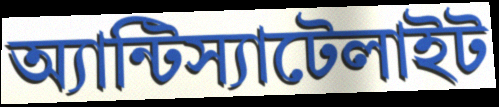
অ্যান্টিস্যাটেলাইট